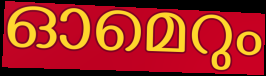
ഓമെറും